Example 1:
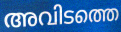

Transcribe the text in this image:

അവിടത്തെ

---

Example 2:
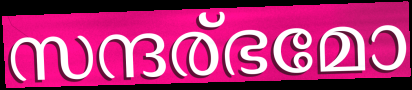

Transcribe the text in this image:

സന്ദര്ഭമോ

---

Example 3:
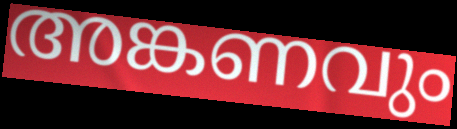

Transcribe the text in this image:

അങ്കണവും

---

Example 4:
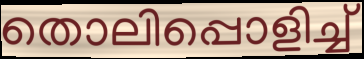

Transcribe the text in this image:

തൊലിപ്പൊളിച്ച്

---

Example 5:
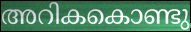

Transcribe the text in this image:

അറികകൊണ്ടു